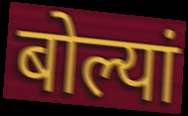
बोल्यां